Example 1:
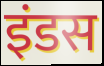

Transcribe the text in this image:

इंडस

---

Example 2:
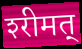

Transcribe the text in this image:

श्रीमत्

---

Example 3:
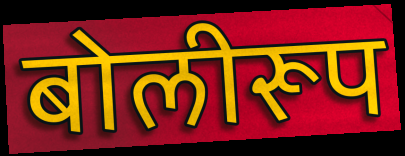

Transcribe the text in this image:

बोलीरूप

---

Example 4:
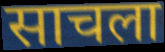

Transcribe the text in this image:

साचला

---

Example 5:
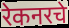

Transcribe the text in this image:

रेकनरचे